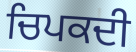
ਚਿਪਕਦੀ